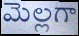
మెల్లగా